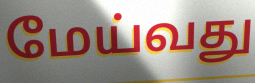
மேய்வது